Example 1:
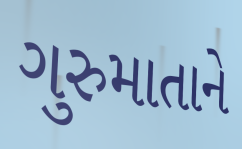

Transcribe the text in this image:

ગુરુમાતાને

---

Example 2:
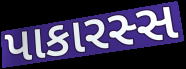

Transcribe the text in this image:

પાકારસ્સ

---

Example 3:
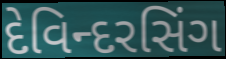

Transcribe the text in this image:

દેવિન્દરસિંગ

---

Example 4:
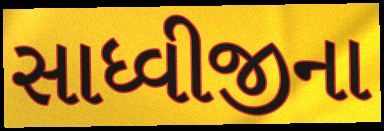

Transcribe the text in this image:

સાધ્વીજીના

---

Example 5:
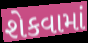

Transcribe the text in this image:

શેકવામાં